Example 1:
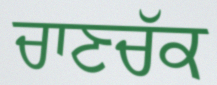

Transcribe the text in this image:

ਚਾਣਚੱਕ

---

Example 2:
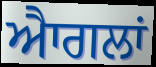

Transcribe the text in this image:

ਐਾਗਲਾਂ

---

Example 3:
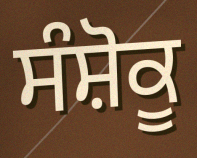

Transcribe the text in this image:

ਸੰਸ਼ੋਕੂ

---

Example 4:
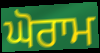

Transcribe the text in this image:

ਘੋਰਾਮ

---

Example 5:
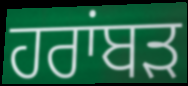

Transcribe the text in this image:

ਹਰਾਂਬੜ